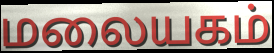
மலையகம்